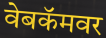
वेबकॅमवर